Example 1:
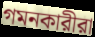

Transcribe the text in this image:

গমনকারীরা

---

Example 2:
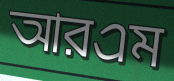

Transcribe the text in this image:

আরএম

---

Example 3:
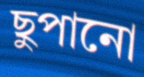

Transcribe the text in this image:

ছুপানো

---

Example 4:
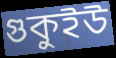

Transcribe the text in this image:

গুকুইউ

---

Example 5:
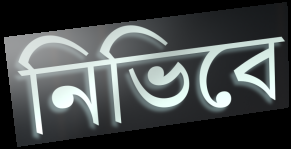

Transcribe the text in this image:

নিভিবে